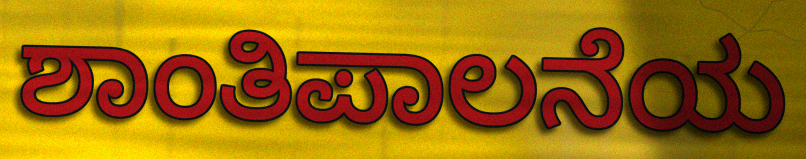
ಶಾಂತಿಪಾಲನೆಯ